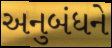
અનુબંધને